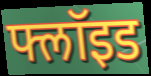
फ्लॉइड